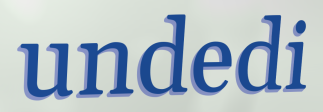
undedi